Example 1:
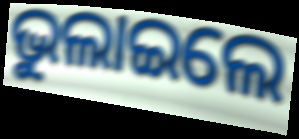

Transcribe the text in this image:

ଭୁଲାଇଲେ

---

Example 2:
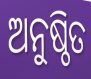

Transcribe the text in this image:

ଅନୁଷ୍ଠିତ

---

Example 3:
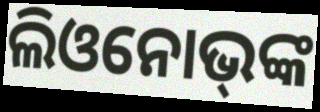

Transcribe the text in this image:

ଲିଓନୋଭ୍‌ଙ୍କ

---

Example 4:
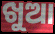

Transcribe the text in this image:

ଖୁଆ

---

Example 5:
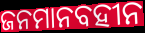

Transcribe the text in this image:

ଜନମାନବହୀନ